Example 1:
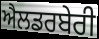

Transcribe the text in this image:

ਐਲਡਰਬੇਰੀ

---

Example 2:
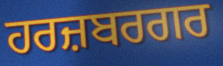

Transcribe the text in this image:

ਹਰਜ਼ਬਰਗਰ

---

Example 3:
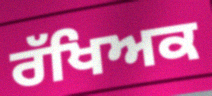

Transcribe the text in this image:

ਰੱਖਿਅਕ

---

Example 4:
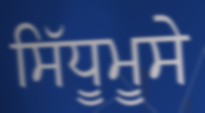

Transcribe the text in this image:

ਸਿੱਧੂਮੂਸੇ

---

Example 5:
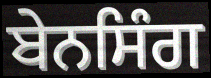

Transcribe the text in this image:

ਬੇਨਸਿੰਗ